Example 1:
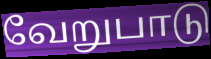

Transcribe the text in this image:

வேறுபாடு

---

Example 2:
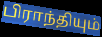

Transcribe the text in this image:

பிராந்தியும்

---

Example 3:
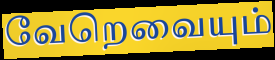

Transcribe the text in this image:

வேறெவையும்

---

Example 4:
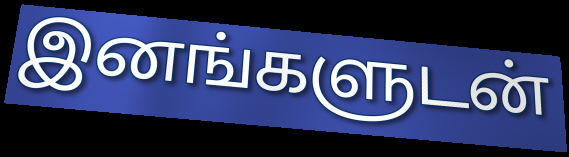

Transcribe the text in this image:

இனங்களுடன்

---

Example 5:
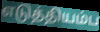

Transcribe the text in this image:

எடுத்தியம்ப